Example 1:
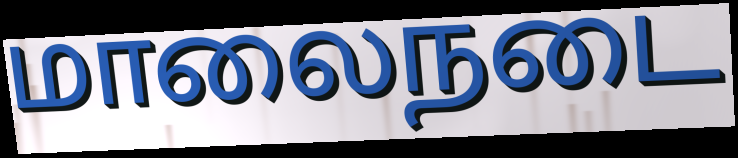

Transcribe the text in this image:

மாலைநடை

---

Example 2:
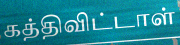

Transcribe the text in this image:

கத்திவிட்டாள்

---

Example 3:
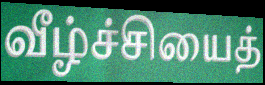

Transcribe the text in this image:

வீழ்ச்சியைத்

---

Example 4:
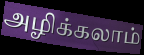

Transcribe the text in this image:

அழிக்கலாம்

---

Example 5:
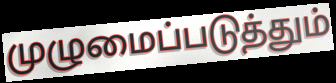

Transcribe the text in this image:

முழுமைப்படுத்தும்